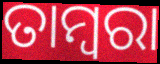
ତାମ୍ବରା